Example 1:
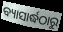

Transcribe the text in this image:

ବ୍ୟାସାର୍ଦ୍ଧଠାରୁ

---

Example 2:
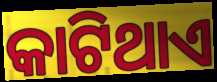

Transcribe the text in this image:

କାଟିଥାଏ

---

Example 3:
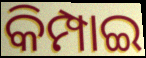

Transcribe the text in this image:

କିମ୍ପାଇ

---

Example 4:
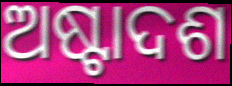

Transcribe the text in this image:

ଅଷ୍ଟାଦଶ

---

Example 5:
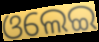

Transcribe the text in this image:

ଓଲେଇ